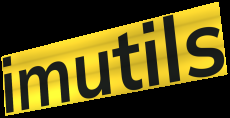
imutils